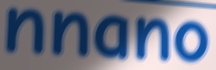
nnano